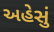
અહેસું